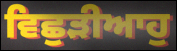
ਵਿਛੁੜੀਆਹੁ